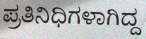
ಪ್ರತಿನಿಧಿಗಳಾಗಿದ್ದ